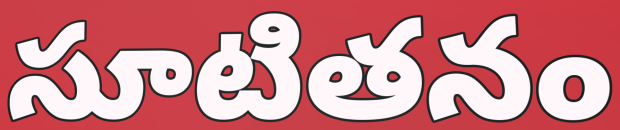
సూటితనం